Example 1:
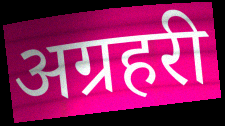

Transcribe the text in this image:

अग्रहरी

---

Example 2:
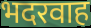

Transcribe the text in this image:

भदरवाह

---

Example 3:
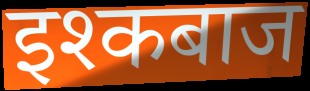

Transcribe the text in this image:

इश्कबाज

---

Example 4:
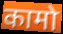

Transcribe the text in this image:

कामो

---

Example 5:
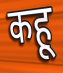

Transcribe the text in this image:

कहू